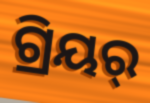
ଗ୍ରିୟର୍